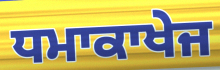
ਧਮਾਕਾਖੇਜ